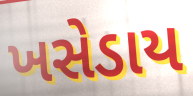
ખસેડાય